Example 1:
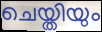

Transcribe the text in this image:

ചെയ്തിയും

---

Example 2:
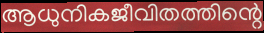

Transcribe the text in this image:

ആധുനികജീവിതത്തിന്റെ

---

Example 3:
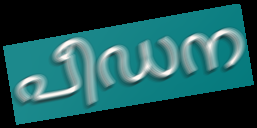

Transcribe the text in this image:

പീഡന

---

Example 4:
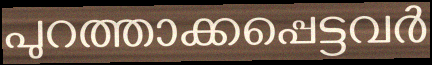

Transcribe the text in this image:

പുറത്താക്കപ്പെട്ടവർ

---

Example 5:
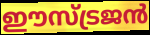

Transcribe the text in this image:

ഈസ്ട്രജൻ